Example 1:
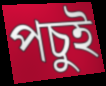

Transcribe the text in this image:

পচুই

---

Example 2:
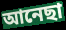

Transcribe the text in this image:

আনেছা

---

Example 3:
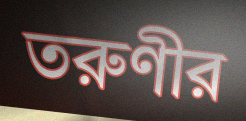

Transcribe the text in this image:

তরুণীর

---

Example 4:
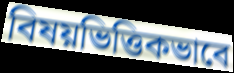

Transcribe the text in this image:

বিষয়ভিত্তিকভাবে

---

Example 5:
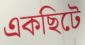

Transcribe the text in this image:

একছিটে